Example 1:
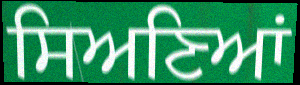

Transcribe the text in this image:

ਸਿਅਣਿਆਂ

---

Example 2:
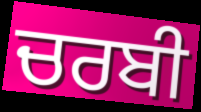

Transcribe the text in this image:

ਚਰਬੀ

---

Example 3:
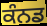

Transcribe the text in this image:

ਕੰਨਡ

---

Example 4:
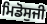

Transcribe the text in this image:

ਮਿਡੋਸੁਜੀ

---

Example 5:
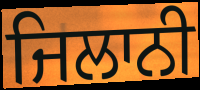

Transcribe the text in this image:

ਜਿਲਾਨੀ